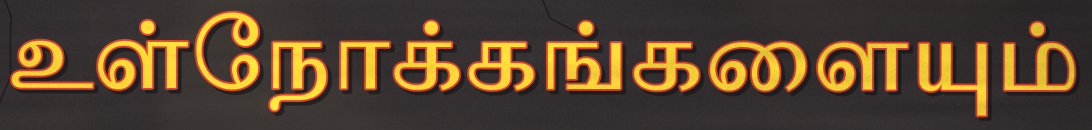
உள்நோக்கங்களையும்